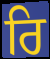
ਰਿ